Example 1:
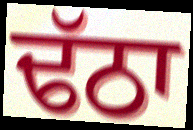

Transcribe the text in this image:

ਢੱਠਾ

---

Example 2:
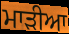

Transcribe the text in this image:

ਮਾੜੀਆ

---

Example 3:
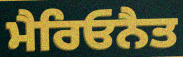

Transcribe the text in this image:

ਮੈਰਿਓਨੈਤ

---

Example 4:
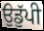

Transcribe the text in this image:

ਉਡੁੱਪੀ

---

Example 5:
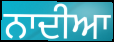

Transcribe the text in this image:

ਨਾਦੀਆ